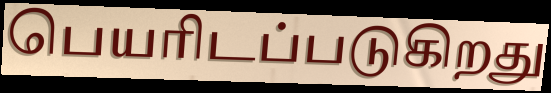
பெயரிடப்படுகிறது